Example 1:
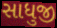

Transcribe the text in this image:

સાધુજી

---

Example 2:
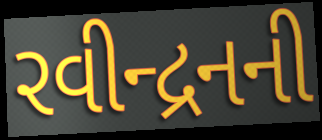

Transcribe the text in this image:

રવીન્દ્રનની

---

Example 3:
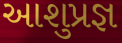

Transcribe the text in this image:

આશુપ્રજ્ઞ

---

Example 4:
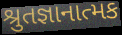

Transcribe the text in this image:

શ્રુતજ્ઞાનાત્મક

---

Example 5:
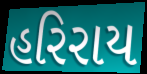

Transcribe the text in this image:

હરિરાય